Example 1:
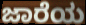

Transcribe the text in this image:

ಜಾರೆಯ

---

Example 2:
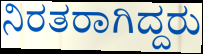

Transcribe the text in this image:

ನಿರತರಾಗಿದ್ದರು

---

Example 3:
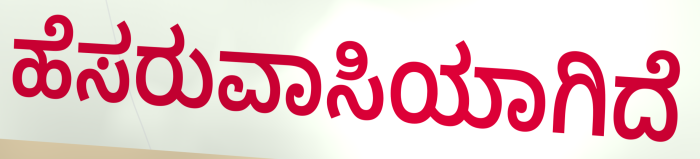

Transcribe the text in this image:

ಹೆಸರುವಾಸಿಯಾಗಿದೆ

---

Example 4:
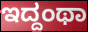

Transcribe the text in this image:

ಇದ್ದಂಥಾ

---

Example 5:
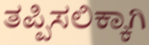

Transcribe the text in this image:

ತಪ್ಪಿಸಲಿಕ್ಕಾಗಿ